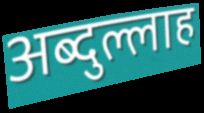
अब्दुल्लाह